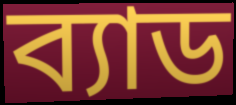
ব্যাড